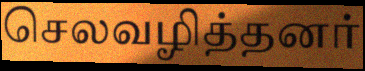
செலவழித்தனர்